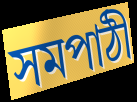
সমপাঠী